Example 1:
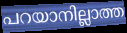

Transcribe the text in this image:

പറയാനില്ലാത്ത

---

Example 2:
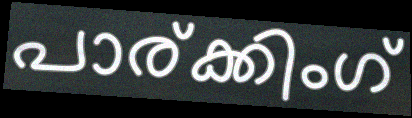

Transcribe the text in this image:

പാര്ക്കിംഗ്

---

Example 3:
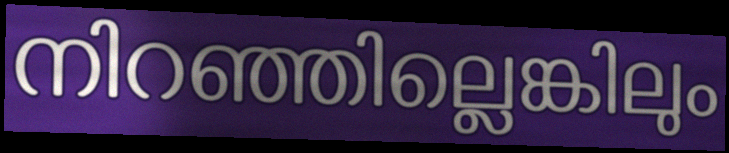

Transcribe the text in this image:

നിറഞ്ഞില്ലെങ്കിലും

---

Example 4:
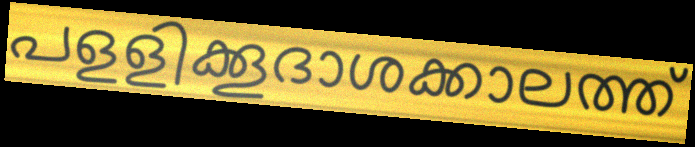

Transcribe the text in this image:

പളളിക്കൂദാശക്കാലത്ത്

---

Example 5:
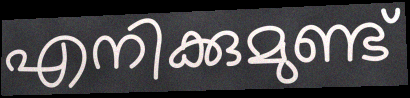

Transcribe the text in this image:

എനിക്കുമുണ്ട്